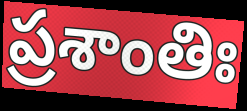
ప్రశాంతిః